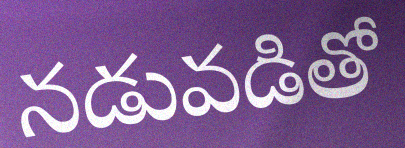
నడువడితో